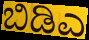
ಬಿಡಿಎ